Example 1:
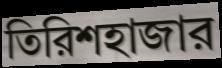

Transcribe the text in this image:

তিরিশহাজার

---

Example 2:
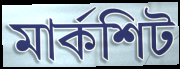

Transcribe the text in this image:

মার্কশিট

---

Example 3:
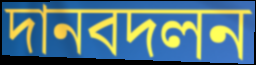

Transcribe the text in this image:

দানবদলন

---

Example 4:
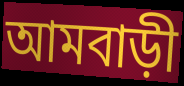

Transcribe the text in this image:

আমবাড়ী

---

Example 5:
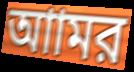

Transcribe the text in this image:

আামর